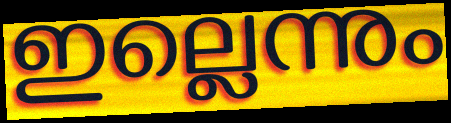
ഇല്ലെന്നും